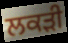
ਲਕੜੀ